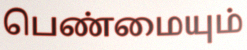
பெண்மையும்